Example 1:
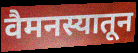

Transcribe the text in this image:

वैमनस्यातून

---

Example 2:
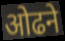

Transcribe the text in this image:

ओढने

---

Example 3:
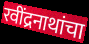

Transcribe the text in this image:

रवींद्रनाथांचा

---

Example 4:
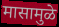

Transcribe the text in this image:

मासामुळे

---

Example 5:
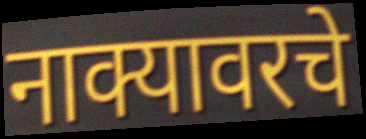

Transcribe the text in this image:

नाक्यावरचे